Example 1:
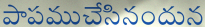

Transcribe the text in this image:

పాపముచేసినందున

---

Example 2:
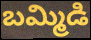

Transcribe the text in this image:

బమ్మిడి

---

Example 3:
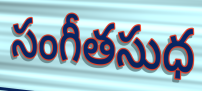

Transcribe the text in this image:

సంగీతసుధ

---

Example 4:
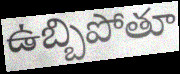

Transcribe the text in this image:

ఉబ్బిపోతూ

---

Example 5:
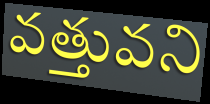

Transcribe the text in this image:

వత్తువని